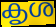
കൃശ